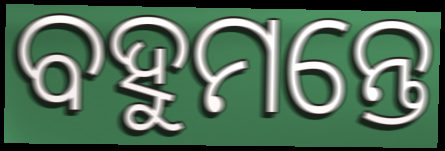
ବହୁମନ୍ତେ